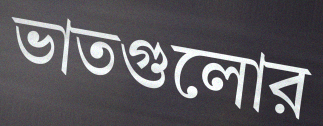
ভাতগুলোর